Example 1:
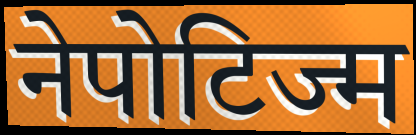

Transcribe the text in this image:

नेपोटिज्म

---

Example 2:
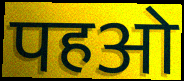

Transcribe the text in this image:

पहओ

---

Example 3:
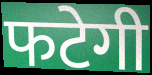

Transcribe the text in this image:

फटेगी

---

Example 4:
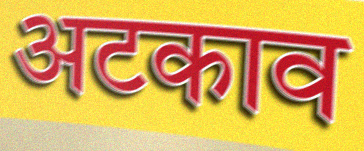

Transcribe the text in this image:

अटकाव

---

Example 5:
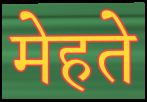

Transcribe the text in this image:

मेहते